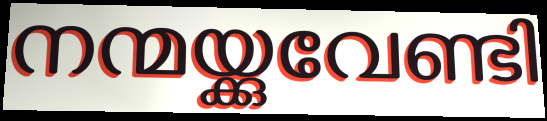
നന്മയ്ക്കുവേണ്ടി